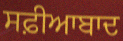
ਸਫ਼ੀਆਬਾਦ